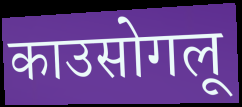
काउसोगलू